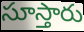
సూస్తారు